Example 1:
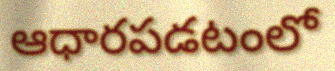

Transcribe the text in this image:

ఆధారపడటంలో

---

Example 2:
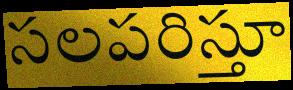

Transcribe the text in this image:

సలపరిస్తూ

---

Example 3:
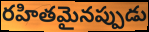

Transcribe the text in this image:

రహితమైనప్పుడు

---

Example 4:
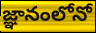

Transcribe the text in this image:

జ్ఞానంలోనో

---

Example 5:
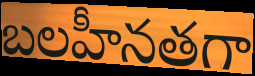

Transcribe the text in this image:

బలహీనతగా